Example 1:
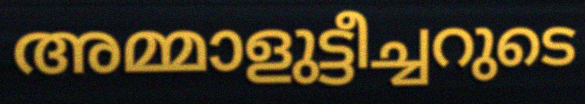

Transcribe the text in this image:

അമ്മാളുട്ടീച്ചറുടെ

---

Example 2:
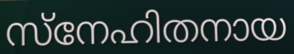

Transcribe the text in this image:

സ്നേഹിതനായ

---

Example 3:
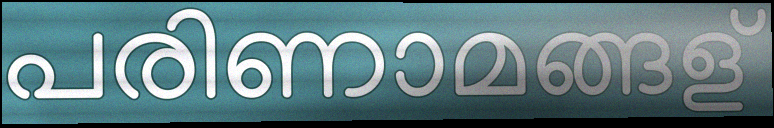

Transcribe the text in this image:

പരിണാമങ്ങള്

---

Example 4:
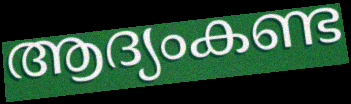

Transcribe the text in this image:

ആദ്യംകണ്ട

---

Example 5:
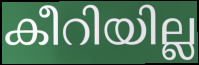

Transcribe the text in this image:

കീറിയില്ല